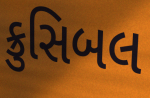
ક્રુસિબલ